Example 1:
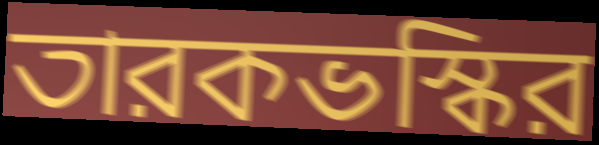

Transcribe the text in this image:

তারকভস্কির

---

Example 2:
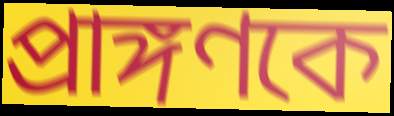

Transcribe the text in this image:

প্রাঙ্গণকে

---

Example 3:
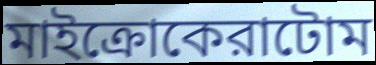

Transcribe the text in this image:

মাইক্রোকেরাটোম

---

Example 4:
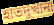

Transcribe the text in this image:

হাতদুখানা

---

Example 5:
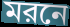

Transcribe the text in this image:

মরনে